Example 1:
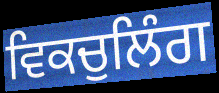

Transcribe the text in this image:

ਵਿਕਚੁਲਿੰਗ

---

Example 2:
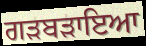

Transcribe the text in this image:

ਗੜਬੜਾਇਆ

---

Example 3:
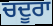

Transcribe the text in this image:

ਚਦੂਰਾ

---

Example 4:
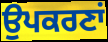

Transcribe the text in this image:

ਉਪਕਰਣਾਂ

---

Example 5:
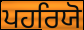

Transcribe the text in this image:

ਪਹਰਿਯੋ